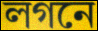
লগনে